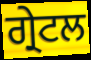
ਗ੍ਰੇਟਲ